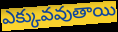
ఎక్కువవుతాయి